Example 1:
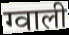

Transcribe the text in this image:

ग्वाली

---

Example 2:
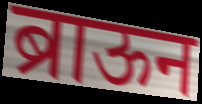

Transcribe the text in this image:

ब्राऊन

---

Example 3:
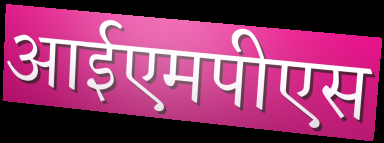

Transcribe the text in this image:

आईएमपीएस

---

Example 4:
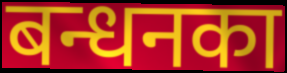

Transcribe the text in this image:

बन्धनका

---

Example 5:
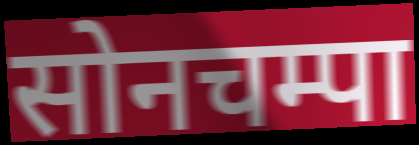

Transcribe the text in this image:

सोनचम्पा